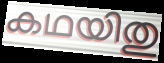
കഥയിതു